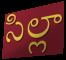
సిల్లా